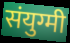
संयुग्मी